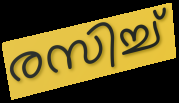
രസിച്ച്